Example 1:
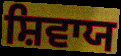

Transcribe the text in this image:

ਸ਼ਿਵਾਯ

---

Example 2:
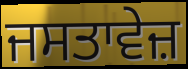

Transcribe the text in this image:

ਜਸਤਾਵੇਜ਼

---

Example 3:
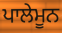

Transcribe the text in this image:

ਪਾਲੇਮੂਨ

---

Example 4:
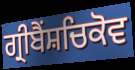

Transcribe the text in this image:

ਗ੍ਰੀਬੈਂਸ਼ਚਿਕੋਵ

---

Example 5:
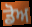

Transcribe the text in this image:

ਡੋਅ